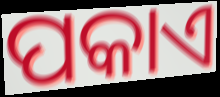
ପକାଏ